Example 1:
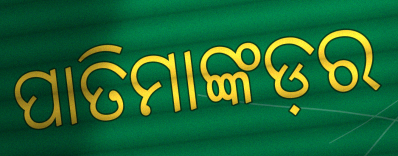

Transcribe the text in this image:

ପାତିମାଙ୍କଡ଼ର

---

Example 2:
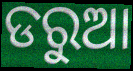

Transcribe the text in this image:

ଡରୁଆ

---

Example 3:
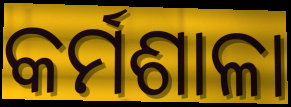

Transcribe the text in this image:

କର୍ମଶାଳା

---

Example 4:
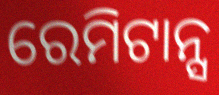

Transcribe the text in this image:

ରେମିଟାନ୍ସ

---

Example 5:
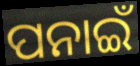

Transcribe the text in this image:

ପନାଇଁ